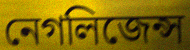
নেগলিজেন্স